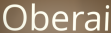
Oberai